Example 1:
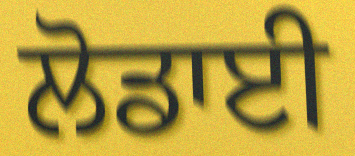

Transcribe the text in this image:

ਲੋਡਾਈ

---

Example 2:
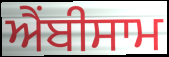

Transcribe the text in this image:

ਐਂਬੀਸਾਮ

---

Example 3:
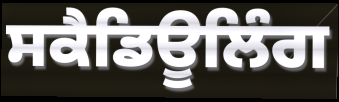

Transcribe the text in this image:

ਸਕੈਡਿਊਲਿੰਗ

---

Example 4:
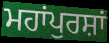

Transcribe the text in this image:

ਮਹਾਂਪੁਰਸ਼ਾਂ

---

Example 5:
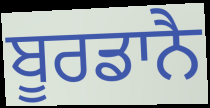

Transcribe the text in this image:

ਬੂਰਡਾਨੈ